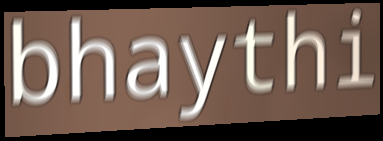
bhaythi